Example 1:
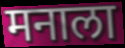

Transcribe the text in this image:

मनाला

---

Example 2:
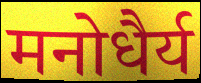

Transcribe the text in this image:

मनोधैर्य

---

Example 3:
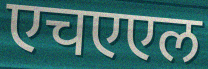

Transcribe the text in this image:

एचएएल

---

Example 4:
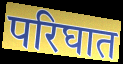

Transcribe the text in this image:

परिघात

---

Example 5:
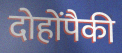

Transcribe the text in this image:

दोहोंपैकी